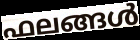
ഫലങ്ങൾ